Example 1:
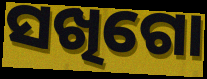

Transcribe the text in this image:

ସଖିଗୋ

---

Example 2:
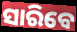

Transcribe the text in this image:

ସାରିବେ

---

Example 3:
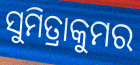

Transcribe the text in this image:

ସୁମିତ୍ରାକୁମର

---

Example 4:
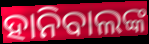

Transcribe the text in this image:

ହାନିବାଲଙ୍କ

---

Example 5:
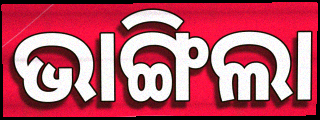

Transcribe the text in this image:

ଭାଙ୍ଗିଲା